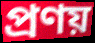
প্ৰণয়